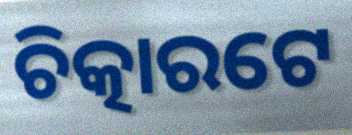
ଚିତ୍କାରଟେ